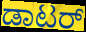
ಡಾಟರ್